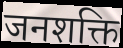
जनशक्ति